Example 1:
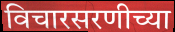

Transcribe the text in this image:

विचारसरणीच्या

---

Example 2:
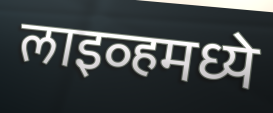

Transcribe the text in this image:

लाइव्हमध्ये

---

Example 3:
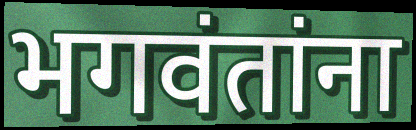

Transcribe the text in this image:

भगवंतांना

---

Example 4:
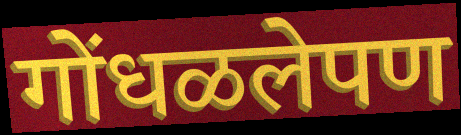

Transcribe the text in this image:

गोंधळलेपण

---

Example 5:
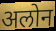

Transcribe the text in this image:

अलोन